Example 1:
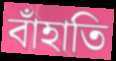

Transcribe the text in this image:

বাঁহাতি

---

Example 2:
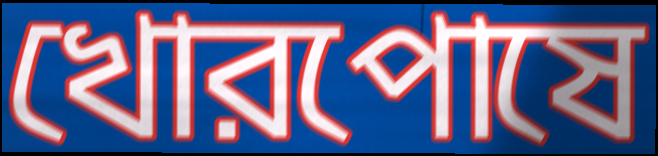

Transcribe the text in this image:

খোরপোষে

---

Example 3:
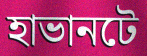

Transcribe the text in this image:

হাভানটে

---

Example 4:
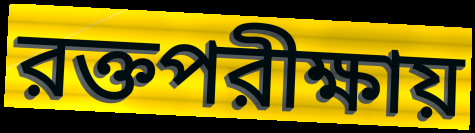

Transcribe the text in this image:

রক্তপরীক্ষায়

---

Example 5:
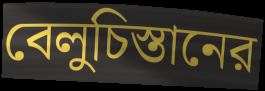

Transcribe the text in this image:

বেলুচিস্তানের